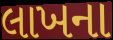
લાખના